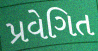
પ્રવેગિત